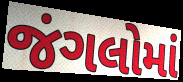
જંગલોમાં